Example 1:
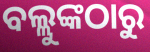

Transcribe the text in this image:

ବଲ୍ଲୁଙ୍କଠାରୁ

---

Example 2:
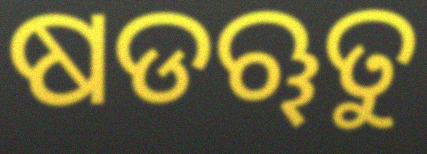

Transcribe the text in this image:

ଷଡୠତୁ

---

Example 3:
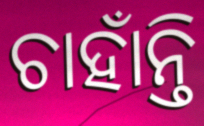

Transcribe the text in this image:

ଚାହାଁନ୍ତି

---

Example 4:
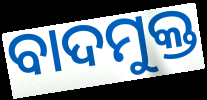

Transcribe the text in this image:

ବାଦମୁକ୍ତ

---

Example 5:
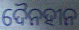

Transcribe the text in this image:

ଦୈନହୀନ